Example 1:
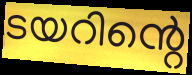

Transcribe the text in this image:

ടയറിന്റെ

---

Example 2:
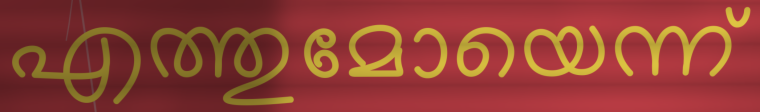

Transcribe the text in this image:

എത്തുമോയെന്ന്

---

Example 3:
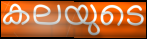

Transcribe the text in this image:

കലയുടെ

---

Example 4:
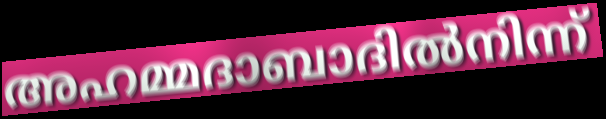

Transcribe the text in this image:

അഹമ്മദാബാദിൽനിന്ന്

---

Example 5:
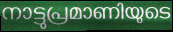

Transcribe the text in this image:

നാട്ടുപ്രമാണിയുടെ